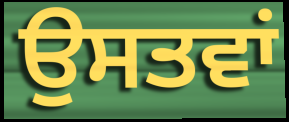
ਉਸਤਵਾਂ